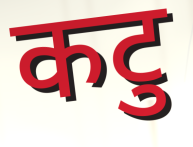
कटु